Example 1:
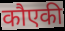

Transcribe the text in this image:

कौएकी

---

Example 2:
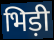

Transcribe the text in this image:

भिड़ी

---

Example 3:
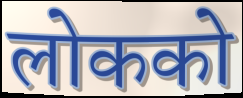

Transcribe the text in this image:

लोकको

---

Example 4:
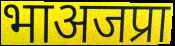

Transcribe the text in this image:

भाअजप्रा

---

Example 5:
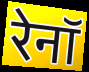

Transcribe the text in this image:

रेनॉ